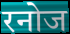
रनोज